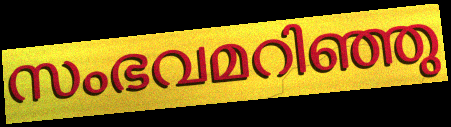
സംഭവമറിഞ്ഞു